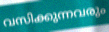
വസിക്കുന്നവരും